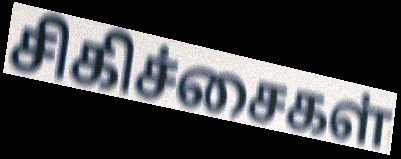
சிகிச்சைகள்